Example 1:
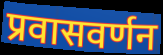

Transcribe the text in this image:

प्रवासवर्णन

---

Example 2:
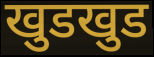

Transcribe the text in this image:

खुडखुड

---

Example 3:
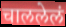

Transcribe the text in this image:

चाललेलं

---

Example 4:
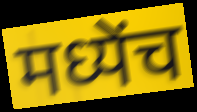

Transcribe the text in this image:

मध्येंच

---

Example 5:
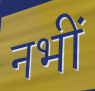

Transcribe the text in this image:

नभीं